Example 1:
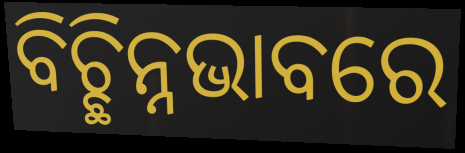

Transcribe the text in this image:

ବିଚ୍ଛିନ୍ନଭାବରେ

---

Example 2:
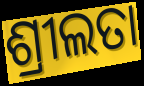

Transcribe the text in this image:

ଶ୍ରୀଲତା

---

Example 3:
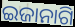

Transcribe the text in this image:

ଇଜାନାଗି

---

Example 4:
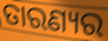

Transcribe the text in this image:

ତାରଣ୍ୟର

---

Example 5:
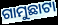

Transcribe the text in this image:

ଗାମୁଛାଟା